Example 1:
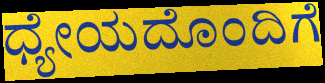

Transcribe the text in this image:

ಧ್ಯೇಯದೊಂದಿಗೆ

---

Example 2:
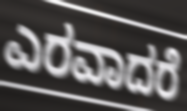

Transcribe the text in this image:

ಎರವಾದರೆ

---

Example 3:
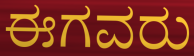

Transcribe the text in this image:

ಈಗವರು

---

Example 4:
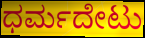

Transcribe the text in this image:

ಧರ್ಮದೇಟು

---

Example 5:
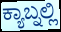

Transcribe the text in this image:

ಕ್ಯಾಬ್ನಲ್ಲಿ